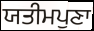
ਯਤੀਮਪੁਣਾ